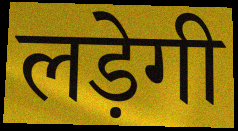
लड़ेगी